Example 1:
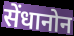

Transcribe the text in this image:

सेंधानोन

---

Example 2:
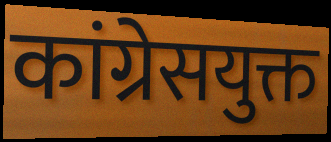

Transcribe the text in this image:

कांग्रेसयुक्त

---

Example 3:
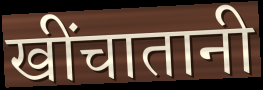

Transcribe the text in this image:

खींचातानी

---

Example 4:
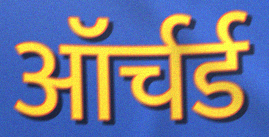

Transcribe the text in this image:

ऑर्चर्ड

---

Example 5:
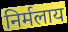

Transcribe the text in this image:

निर्मलाय